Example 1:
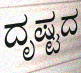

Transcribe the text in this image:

ದೃಷ್ಟದ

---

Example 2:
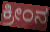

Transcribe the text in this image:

ಕ್ರೀಂನ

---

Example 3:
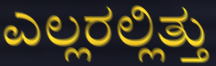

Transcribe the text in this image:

ಎಲ್ಲರಲ್ಲಿತ್ತು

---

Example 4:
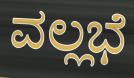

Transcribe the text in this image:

ವಲ್ಲಭೆ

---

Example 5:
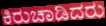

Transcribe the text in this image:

ಕಿರುಚಾಡಿದರು